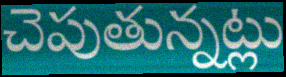
చెపుతున్నట్లు